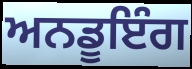
ਅਨਡੂਇੰਗ